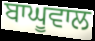
ਬਾਘੂਵਾਲ